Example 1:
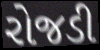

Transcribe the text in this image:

રોજડી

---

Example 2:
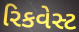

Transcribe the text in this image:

રિકવેસ્ટ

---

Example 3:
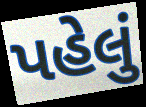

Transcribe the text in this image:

પહેલું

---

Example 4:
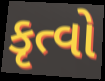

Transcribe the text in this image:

કૃત્વો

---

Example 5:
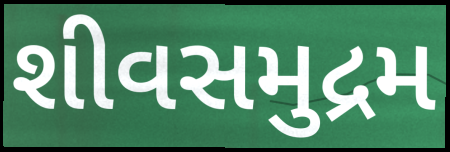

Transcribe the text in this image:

શીવસમુદ્રમ